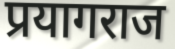
प्रयागराज